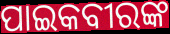
ପାଇକବୀରଙ୍କ